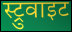
स्ट्रुवाइट